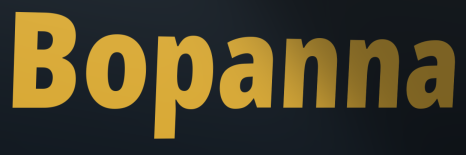
Bopanna